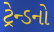
ટ્રેન્ડનો